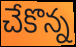
చేకొన్న